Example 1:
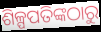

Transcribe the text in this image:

ଶିଳ୍ପପତିଙ୍କଠାରୁ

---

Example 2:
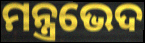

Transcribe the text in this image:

ମନ୍ତ୍ରଭେଦ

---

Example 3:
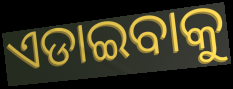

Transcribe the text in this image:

ଏଡାଇବାକୁ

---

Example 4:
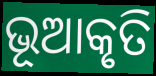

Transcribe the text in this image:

ଭୂଆକୃତି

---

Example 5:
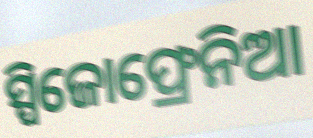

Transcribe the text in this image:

ସ୍ପିଜୋଫ୍ରେନିଆ